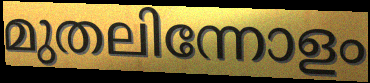
മുതലിന്നോളം